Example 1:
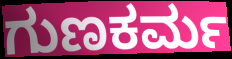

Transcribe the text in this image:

ಗುಣಕರ್ಮ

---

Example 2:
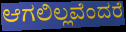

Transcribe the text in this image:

ಆಗಲಿಲ್ಲವೆಂದರೆ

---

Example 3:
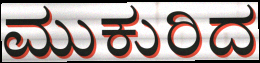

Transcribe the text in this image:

ಮುಕುರಿದ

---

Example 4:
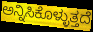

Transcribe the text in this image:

ಅನ್ನಿಸಿಕೊಳ್ಳುತ್ತದೆ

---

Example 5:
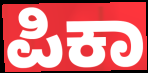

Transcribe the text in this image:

ಪಿಕಾ